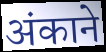
अंकाने